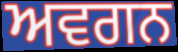
ਅਵਗਨ